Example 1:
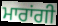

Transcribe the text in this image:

ਮਾਰਾਂਗੀ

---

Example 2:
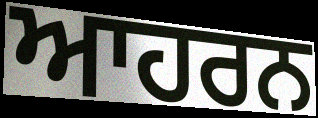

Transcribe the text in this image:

ਆਹਰਨ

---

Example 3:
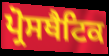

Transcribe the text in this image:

ਪ੍ਰੋਸਥੈਟਿਕ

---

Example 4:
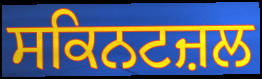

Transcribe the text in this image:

ਸਕਿਨਟਜ਼ਲ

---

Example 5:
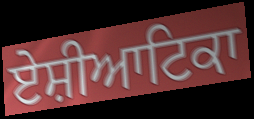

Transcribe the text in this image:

ਏਸ਼ੀਆਟਿਕਾ